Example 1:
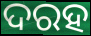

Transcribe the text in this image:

ଦରହ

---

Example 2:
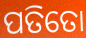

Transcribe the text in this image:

ପତିତୋ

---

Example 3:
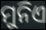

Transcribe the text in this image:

ମୁନିଏ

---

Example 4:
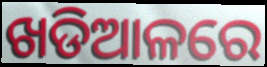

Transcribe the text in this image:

ଖଡିଆଳରେ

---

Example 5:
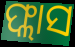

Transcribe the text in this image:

ଫ୍ଲାସ